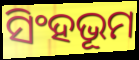
ସିଂହଭୂମ